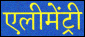
एलीमेंट्री